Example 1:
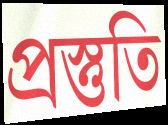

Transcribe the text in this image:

প্রস্তুতি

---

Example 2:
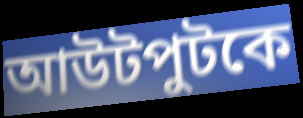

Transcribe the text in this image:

আউটপুটকে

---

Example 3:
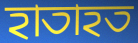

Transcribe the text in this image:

হাতাহত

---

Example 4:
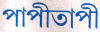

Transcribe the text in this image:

পাপীতাপী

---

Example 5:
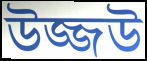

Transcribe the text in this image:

উজ্জউ